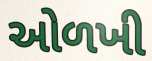
ઓળખી